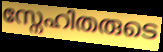
സ്നേഹിതരുടെ